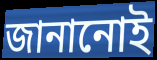
জানানোই